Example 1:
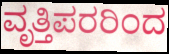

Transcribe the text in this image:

ವೃತ್ತಿಪರರಿಂದ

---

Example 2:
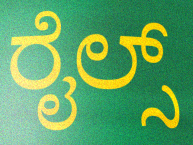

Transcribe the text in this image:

ರೈಲ್ಸ್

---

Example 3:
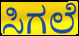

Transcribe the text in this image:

ಸಿಗಲೆ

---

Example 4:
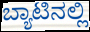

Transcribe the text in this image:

ಬ್ಯಾಟಿನಲ್ಲಿ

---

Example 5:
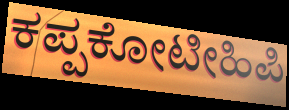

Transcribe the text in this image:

ಕಪ್ಪಕೋಟೀಹಿಪಿ